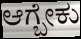
ಆಗ್ಬೇಕು